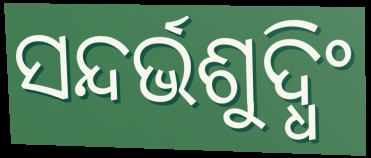
ସନ୍ଦର୍ଭଶୁଦ୍ଧିଂ